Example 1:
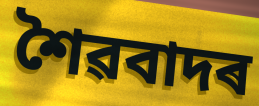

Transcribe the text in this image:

শৈৱবাদৰ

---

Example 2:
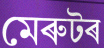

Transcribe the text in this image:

মেৰুটৰ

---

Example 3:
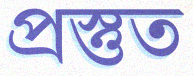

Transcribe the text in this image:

প্ৰস্তুত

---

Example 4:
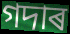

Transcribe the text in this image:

গদাৰ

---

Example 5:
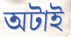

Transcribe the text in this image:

অটাই